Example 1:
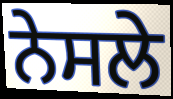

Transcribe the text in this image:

ਨੇਸਲੇ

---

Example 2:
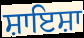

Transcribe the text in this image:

ਸ਼ਾਇਸ਼ਾ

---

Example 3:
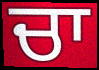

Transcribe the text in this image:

ਚਾ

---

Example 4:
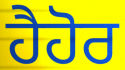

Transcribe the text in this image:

ਹੈਹੋਰ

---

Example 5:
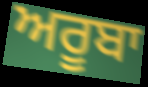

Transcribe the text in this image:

ਅਰੂਬਾ